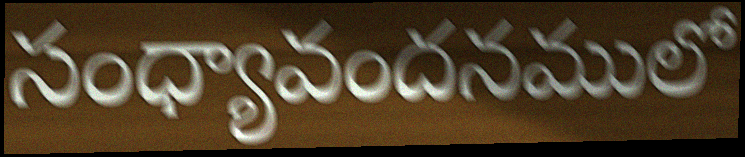
సంధ్యావందనములో